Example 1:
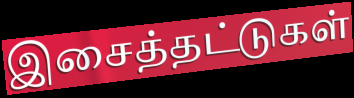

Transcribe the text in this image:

இசைத்தட்டுகள்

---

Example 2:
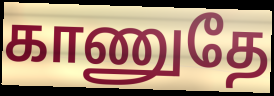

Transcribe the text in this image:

காணுதே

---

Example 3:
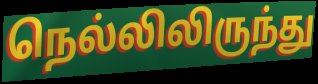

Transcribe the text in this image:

நெல்லிலிருந்து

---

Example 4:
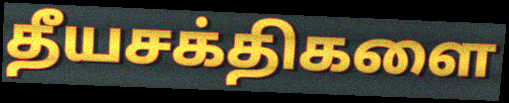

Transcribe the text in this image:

தீயசக்திகளை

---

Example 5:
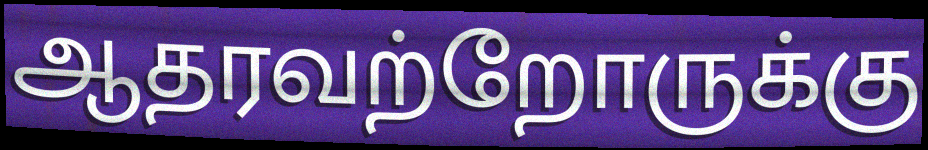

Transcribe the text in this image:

ஆதரவற்றோருக்கு